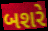
બશરે